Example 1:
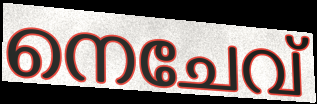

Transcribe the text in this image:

നെചേവ്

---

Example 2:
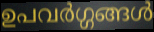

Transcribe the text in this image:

ഉപവർഗ്ഗങ്ങൾ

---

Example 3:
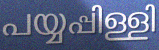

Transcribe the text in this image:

പയ്യപ്പിള്ളി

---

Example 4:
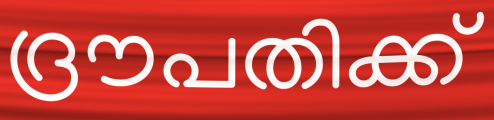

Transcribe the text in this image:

ദ്രൗപതിക്ക്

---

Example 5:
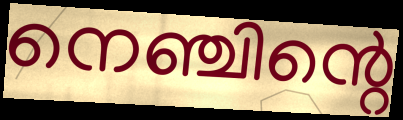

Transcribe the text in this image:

നെഞ്ചിന്റെ